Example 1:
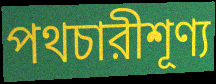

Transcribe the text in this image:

পথচারীশূণ্য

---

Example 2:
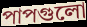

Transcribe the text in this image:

পাপগুলো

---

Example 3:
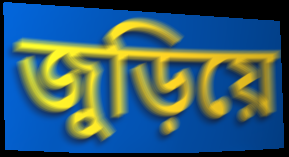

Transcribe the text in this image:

জুড়িয়ে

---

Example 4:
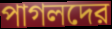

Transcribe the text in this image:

পাগলদের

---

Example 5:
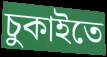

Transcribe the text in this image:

চুকাইতে